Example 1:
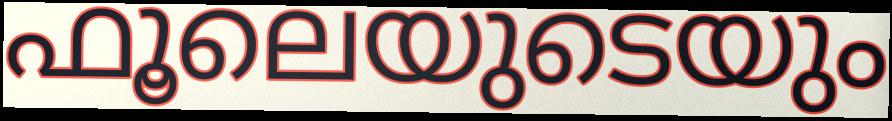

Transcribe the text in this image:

ഫൂലെയുടെയും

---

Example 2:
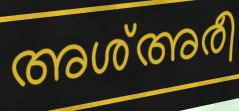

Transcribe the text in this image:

അശ്അരീ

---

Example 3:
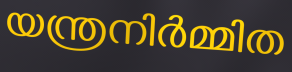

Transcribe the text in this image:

യന്ത്രനിർമ്മിത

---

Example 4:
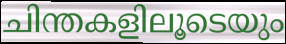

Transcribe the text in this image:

ചിന്തകളിലൂടെയും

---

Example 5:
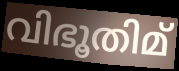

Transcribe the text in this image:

വിഭൂതിമ്